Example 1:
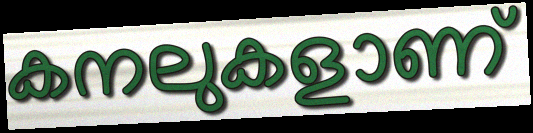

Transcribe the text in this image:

കനലുകളാണ്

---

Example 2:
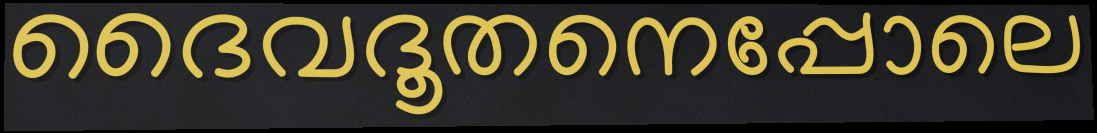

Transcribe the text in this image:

ദൈവദൂതനെപ്പോലെ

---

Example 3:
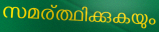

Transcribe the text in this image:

സമര്ത്ഥിക്കുകയും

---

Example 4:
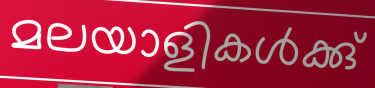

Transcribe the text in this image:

മലയാളികൾക്കു്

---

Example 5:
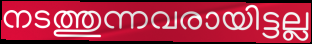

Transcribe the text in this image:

നടത്തുന്നവരായിട്ടല്ല